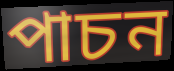
পাচন